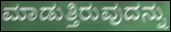
ಮಾಡುತ್ತಿರುವುದನ್ನು